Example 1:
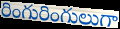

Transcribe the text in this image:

రింగురింగులుగా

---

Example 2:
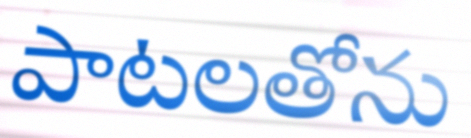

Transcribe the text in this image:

పాటలతోను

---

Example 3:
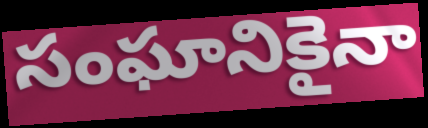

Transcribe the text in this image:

సంఘానికైనా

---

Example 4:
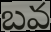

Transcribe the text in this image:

బవ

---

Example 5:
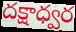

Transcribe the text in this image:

దక్షాధ్వర